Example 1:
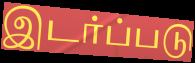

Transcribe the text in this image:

இடர்ப்படு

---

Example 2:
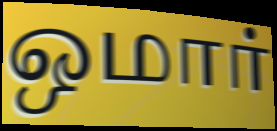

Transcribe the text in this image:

ஒமார்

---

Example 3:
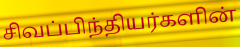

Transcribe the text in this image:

சிவப்பிந்தியர்களின்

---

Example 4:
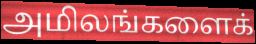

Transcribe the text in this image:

அமிலங்களைக்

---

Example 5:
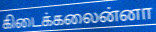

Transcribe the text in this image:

கிடைக்கலைன்னா